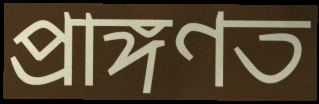
প্ৰাঙ্গণত